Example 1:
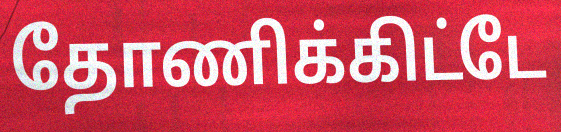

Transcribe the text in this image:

தோணிக்கிட்டே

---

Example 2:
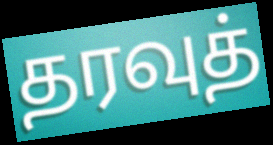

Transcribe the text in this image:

தரவுத்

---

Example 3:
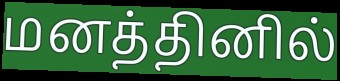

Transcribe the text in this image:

மனத்தினில்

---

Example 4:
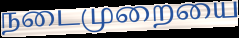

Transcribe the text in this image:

நடைமுறையை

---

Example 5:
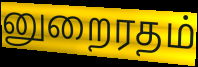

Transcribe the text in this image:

னுறைரதம்